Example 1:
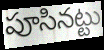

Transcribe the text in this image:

పూసినట్టు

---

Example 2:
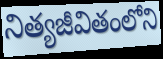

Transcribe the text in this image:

నిత్యజీవితంలోని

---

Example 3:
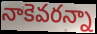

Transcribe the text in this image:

నాకెవరన్నా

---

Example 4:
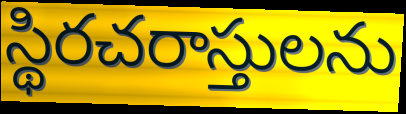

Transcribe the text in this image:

స్థిరచరాస్తులను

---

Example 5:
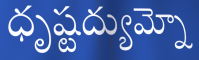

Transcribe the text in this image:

ధృష్టద్యుమ్నో